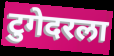
टुगेदरला